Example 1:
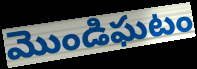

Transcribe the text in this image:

మొండిఘటం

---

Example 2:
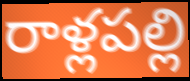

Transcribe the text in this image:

రాళ్లపల్లి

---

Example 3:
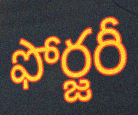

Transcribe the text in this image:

ఫోర్జరీ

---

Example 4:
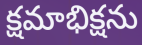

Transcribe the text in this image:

క్షమాభిక్షను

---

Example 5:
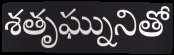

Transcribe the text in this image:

శతృఘ్నునితో